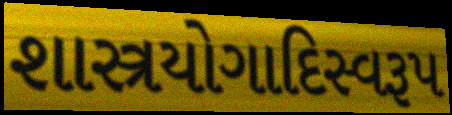
શાસ્ત્રયોગાદિસ્વરૂપ